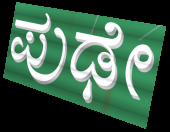
ಪುಢೇ